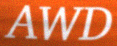
AWD